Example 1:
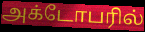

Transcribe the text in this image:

அக்டோபரில்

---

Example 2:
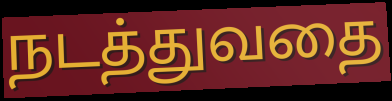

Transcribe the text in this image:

நடத்துவதை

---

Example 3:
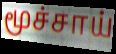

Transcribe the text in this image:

மூச்சாய்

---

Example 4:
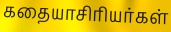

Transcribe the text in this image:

கதையாசிரியர்கள்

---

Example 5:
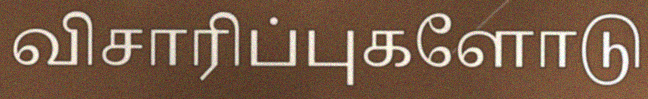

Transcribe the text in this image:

விசாரிப்புகளோடு